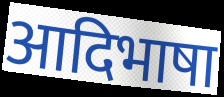
आदिभाषा